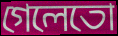
গেলেতো